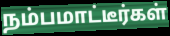
நம்பமாட்டீர்கள்